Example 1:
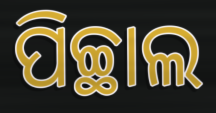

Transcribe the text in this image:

ପିଚ୍ଛାଲ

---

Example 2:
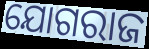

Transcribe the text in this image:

ଯୋଗରାଜ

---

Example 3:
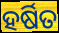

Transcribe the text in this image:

ହର୍ଷିତ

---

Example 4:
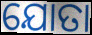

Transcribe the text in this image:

ଯୋତା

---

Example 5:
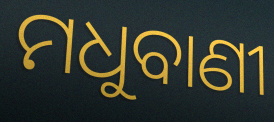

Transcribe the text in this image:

ମଧୁବାଣୀ